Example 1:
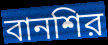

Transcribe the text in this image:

বানশির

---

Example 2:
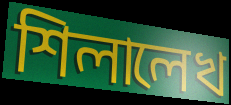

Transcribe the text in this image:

শিলালেখ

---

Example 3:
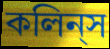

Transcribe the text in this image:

কলিন্‌স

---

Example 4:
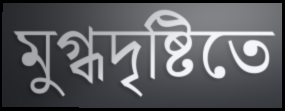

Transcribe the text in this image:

মুগ্ধদৃষ্টিতে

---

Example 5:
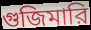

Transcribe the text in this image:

গুজিমারি